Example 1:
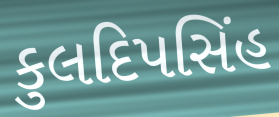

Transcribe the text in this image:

કુલદિપસિંહ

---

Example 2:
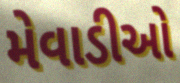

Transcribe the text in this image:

મેવાડીઓ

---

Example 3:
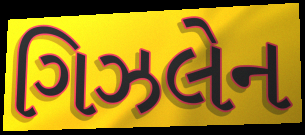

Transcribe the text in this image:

ગિઝલેન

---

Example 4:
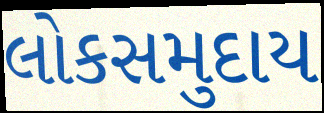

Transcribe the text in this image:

લોકસમુદાય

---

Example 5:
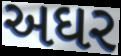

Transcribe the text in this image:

અઘર